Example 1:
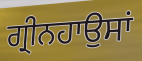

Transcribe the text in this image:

ਗ੍ਰੀਨਹਾਉਸਾਂ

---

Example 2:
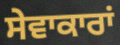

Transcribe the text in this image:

ਸੇਵਾਕਾਰਾਂ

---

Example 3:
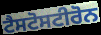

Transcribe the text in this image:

ਟੈਸਟੋਸਟੀਰੋਨ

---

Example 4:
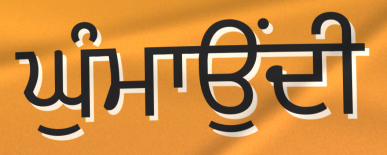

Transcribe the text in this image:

ਘੁੰਮਾਉਂਦੀ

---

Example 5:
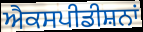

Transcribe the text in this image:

ਐਕਸਪੀਡੀਸ਼ਨਾਂ